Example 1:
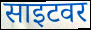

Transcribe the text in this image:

साइटवर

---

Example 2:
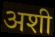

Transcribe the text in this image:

अशी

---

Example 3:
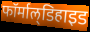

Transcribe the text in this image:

फॉर्माल्डिहाइड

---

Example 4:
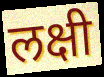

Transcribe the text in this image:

लक्षी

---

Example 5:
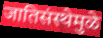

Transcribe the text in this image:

जातिसंस्थेमुळे